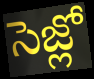
సెజ్లో